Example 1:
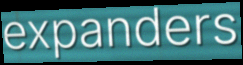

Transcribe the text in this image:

expanders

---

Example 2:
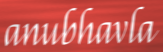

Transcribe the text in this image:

anubhavla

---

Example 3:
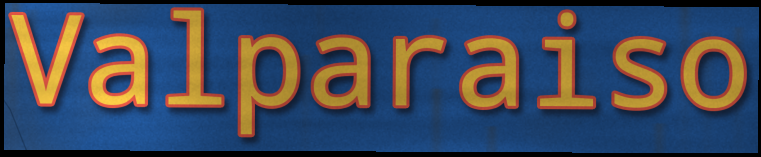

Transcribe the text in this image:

Valparaiso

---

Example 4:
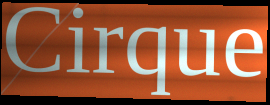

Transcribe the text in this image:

Cirque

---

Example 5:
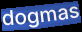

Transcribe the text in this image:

dogmas